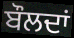
ਬੌਲਦਾਂ